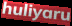
huliyaru